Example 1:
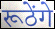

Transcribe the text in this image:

रूठेंगे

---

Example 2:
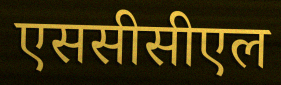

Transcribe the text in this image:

एससीसीएल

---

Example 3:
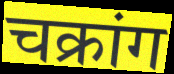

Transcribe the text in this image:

चक्रांग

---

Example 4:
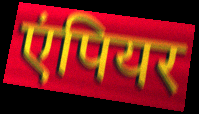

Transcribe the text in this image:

एंपियर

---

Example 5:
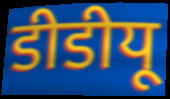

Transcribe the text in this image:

डीडीयू